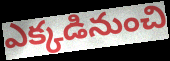
ఎక్కడినుంచి